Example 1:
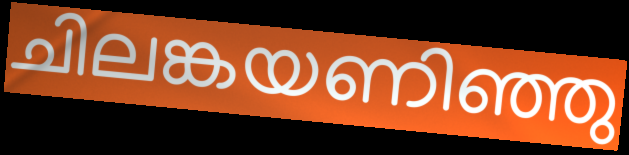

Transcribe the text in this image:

ചിലങ്കയണിഞ്ഞു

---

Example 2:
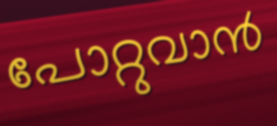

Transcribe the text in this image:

പോറ്റുവാൻ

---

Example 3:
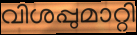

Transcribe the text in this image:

വിശപ്പുമാറ്റി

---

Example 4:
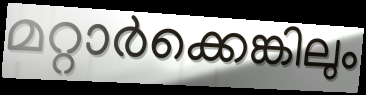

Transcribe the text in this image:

മറ്റാർക്കെങ്കിലും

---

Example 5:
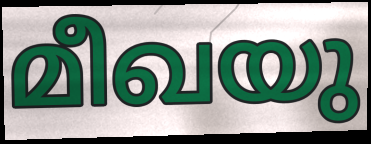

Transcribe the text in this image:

മീഖയു